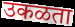
उकळता